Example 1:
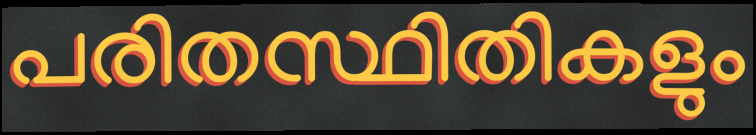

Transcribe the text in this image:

പരിതസ്ഥിതികളും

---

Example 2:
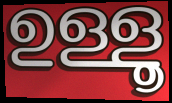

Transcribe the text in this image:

ഉള്ളൂ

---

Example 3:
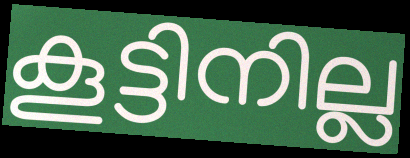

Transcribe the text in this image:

കൂട്ടിനില്ല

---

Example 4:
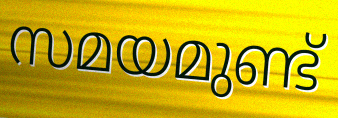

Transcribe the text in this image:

സമയമുണ്ട്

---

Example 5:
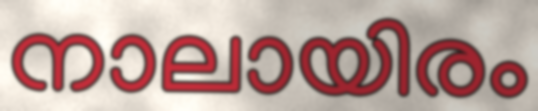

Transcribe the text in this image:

നാലായിരം